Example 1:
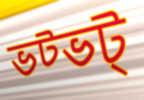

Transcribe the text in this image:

ভট্ভট্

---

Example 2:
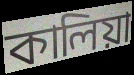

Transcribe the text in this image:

কালিয়া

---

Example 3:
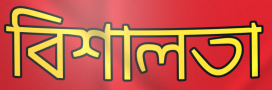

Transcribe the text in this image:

বিশালতা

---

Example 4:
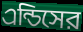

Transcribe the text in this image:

এন্ডিসের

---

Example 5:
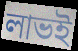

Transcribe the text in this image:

লাভই